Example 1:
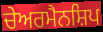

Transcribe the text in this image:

ਚੇਅਰਮੈਨਸ਼ਿਪ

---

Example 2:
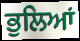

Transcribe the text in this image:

ਭੁਲਿਆਂ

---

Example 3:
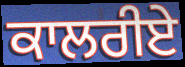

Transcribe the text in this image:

ਕਾਲਰੀਏ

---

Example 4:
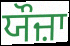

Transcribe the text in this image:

ਯੌਜ਼ਾ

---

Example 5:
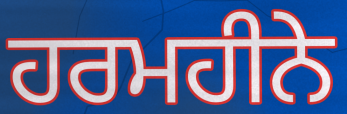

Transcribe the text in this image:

ਹਰਮਹੀਨੇ